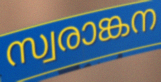
സ്വരാങ്കന